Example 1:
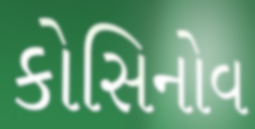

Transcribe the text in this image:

કોસિનોવ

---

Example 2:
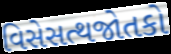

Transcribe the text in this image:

વિસેસત્થજોતકો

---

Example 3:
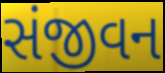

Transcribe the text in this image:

સંજીવન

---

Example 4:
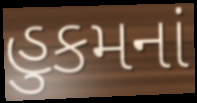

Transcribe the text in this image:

હુકમનાં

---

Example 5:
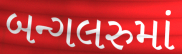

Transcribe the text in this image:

બન્ગલરુમાં